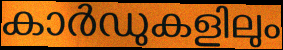
കാർഡുകളിലും